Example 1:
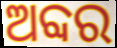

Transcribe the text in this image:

ଅବ୍ଦର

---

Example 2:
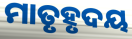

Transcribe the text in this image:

ମାତୃହୃଦୟ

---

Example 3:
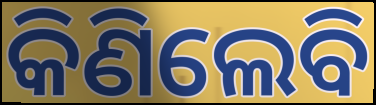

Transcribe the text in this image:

କିଣିଲେବି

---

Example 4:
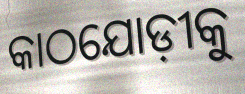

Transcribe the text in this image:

କାଠଯୋଡ଼ୀକୁ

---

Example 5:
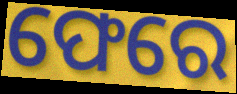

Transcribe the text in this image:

ଫେରେ